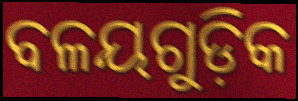
ବଳୟଗୁଡ଼ିକ